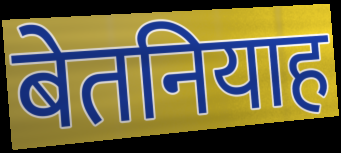
बेतनियाह